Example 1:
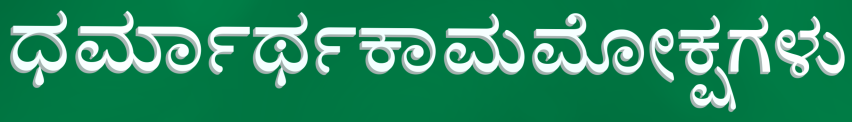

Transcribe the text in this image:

ಧರ್ಮಾರ್ಥಕಾಮಮೋಕ್ಷಗಳು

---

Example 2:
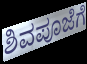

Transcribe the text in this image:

ಶಿವಪೂಜೆಗೆ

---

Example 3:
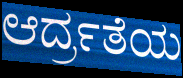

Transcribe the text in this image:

ಆರ್ದ್ರತೆಯ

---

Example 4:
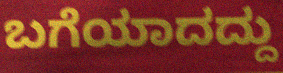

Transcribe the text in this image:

ಬಗೆಯಾದದ್ದು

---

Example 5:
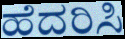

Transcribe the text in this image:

ಹೆದರಿಸಿ